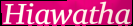
Hiawatha